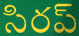
సిరప్